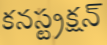
కనస్ట్రక్షన్